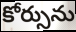
కోర్సును